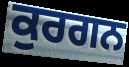
ਕੁਰਗਨ